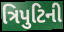
ત્રિપુટિની